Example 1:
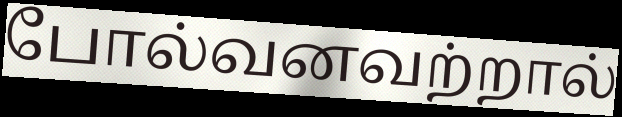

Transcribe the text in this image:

போல்வனவற்றால்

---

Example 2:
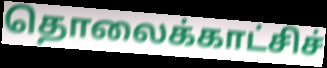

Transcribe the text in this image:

தொலைக்காட்சிச்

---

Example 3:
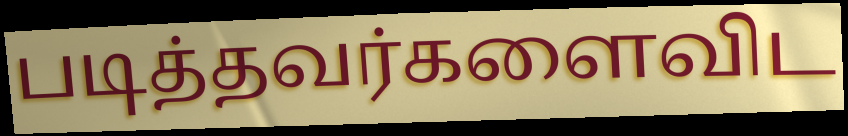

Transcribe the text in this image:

படித்தவர்களைவிட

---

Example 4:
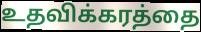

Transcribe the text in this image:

உதவிக்கரத்தை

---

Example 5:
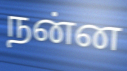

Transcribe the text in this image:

நன்ன